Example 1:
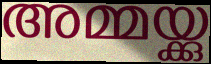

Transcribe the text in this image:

അമ്മയ്ക്കു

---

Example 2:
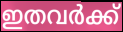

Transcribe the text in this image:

ഇതവർക്ക്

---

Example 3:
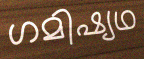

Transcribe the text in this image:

ഗമിഷ്യഥ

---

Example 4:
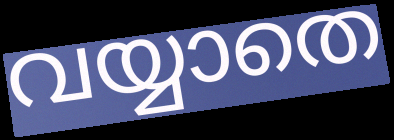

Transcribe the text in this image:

വയ്യാതെ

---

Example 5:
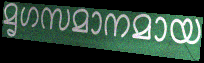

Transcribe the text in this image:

മൃഗസമാനമായ